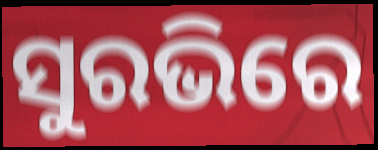
ସୁରଭିରେ